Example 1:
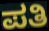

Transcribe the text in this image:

ಪತಿ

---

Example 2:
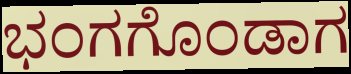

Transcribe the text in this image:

ಭಂಗಗೊಂಡಾಗ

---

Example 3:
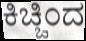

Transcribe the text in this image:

ಕಿಚ್ಚಿಂದ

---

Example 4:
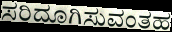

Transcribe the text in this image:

ಸರಿದೂಗಿಸುವಂತಹ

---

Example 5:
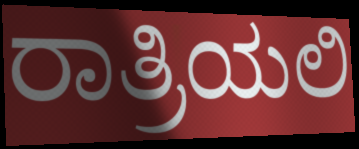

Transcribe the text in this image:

ರಾತ್ರಿಯಲಿ